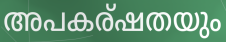
അപകര്ഷതയും